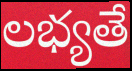
లభ్యతే